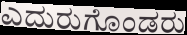
ಎದುರುಗೊಂಡರು